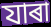
যাৰা